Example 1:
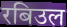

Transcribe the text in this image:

रबिउल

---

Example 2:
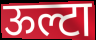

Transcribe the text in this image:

ऊल्टा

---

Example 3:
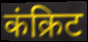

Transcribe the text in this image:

कंक्रिट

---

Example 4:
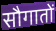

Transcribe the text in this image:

सौगातों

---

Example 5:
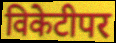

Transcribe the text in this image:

विकेटीपर